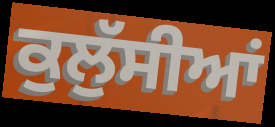
ਕੁਲੁੱਸੀਆਂ